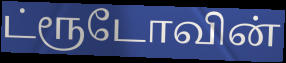
ட்ரூடோவின்